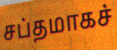
சப்தமாகச்